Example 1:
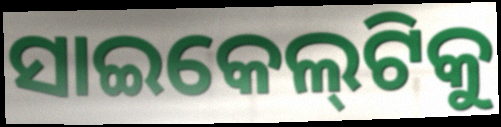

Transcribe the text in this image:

ସାଇକେଲ୍‌ଟିକୁ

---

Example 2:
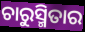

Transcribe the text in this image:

ଚାରୁସ୍ମିତାର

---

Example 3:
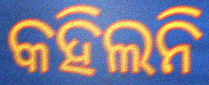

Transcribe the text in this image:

କହିଲନି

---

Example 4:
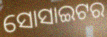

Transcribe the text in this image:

ସୋସାଇଟର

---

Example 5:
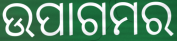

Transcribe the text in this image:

ଉପାଗମର